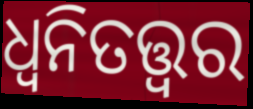
ଧ୍ଵନିତତ୍ତ୍ଵର